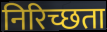
निरिच्छता